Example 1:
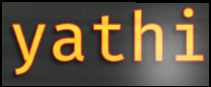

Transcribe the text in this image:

yathi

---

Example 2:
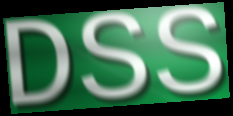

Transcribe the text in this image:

DSS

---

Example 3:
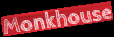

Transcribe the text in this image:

Monkhouse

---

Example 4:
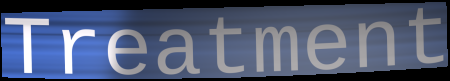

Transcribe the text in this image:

Treatment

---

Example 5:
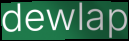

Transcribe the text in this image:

dewlap